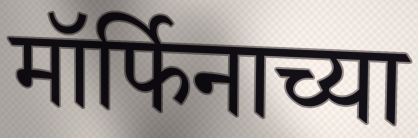
मॉर्फिनाच्या